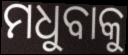
ମଧୁବାକୁ